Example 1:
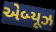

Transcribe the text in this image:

એબ્યૂઝ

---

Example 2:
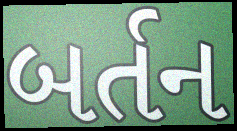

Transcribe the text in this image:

બર્તન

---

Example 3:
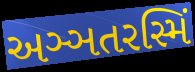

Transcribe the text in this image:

અઞ્ઞતરસ્મિં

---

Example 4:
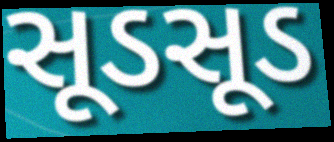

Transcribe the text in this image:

સૂડસૂડ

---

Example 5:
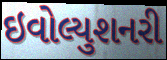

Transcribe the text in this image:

ઇવોલ્યુશનરી